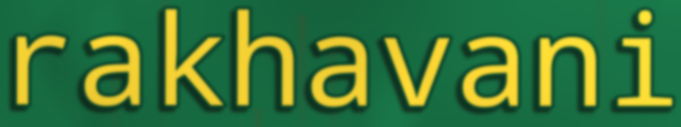
rakhavani